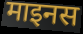
माइनस